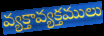
వ్యక్తావ్యక్తములు